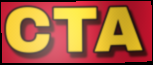
CTA